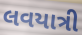
લવયાત્રી